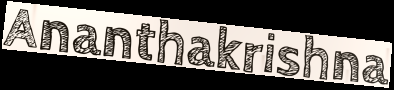
Ananthakrishna